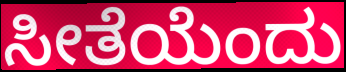
ಸೀತೆಯೆಂದು